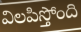
విలపిస్తోంది